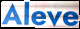
Aleve